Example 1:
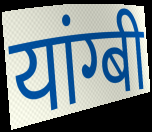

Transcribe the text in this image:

यांग्बी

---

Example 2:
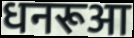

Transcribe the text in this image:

धनरूआ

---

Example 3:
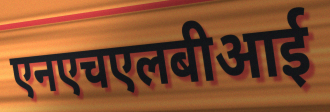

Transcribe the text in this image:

एनएचएलबीआई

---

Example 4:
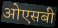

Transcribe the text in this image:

ओएसबी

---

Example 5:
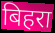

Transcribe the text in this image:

बिहरा